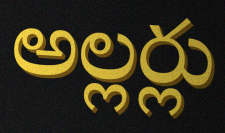
అల్లర్లు